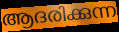
ആദരിക്കുന്ന